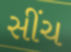
સીંચ